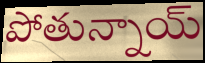
పోతున్నాయ్